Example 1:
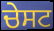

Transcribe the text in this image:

ਚੇਸਟ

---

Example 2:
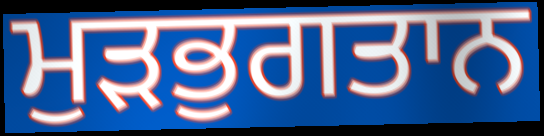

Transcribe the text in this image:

ਮੁੜਭੁਗਤਾਨ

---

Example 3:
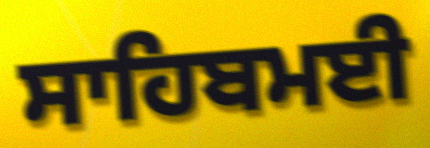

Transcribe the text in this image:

ਸਾਹਿਬਮਈ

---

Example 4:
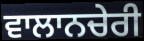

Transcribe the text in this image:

ਵਾਲਾਨਚੇਰੀ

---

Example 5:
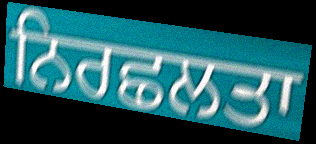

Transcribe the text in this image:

ਨਿਰਛਲਤਾ